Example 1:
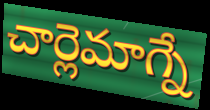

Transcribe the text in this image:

చార్లెమాగ్నే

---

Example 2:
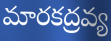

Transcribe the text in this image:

మారకద్రవ్య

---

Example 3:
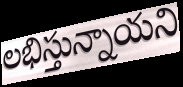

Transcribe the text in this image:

లభిస్తున్నాయని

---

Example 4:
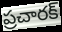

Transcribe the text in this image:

ప్రచారక్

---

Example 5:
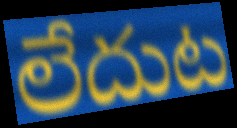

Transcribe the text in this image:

లేదుట